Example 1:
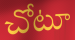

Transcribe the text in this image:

చోటూ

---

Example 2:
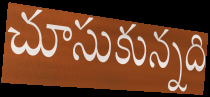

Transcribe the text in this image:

చూసుకున్నది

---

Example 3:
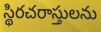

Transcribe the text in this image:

స్థిరచరాస్తులను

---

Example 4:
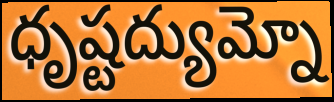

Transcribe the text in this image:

ధృష్టద్యుమ్నో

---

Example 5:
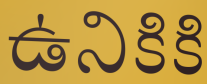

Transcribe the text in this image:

ఉనికికి